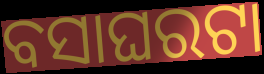
ବସାଘରଟା